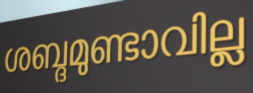
ശബ്ദമുണ്ടാവില്ല